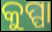
କୁପ୍ପା